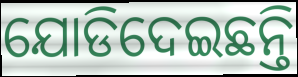
ଯୋଡିଦେଇଛନ୍ତି